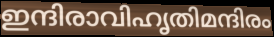
ഇന്ദിരാവിഹൃതിമന്ദിരം